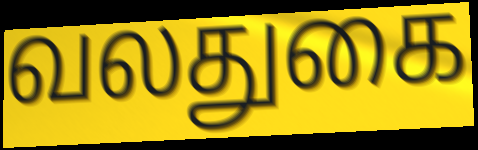
வலதுகை